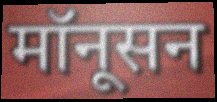
मॉनूसन